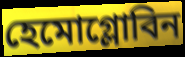
হেমোগ্লোবিন